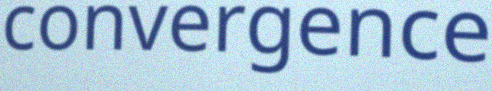
convergence